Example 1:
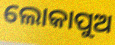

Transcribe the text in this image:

ଲୋକାପୁଅ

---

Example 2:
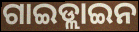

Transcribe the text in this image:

ଗାଇଡ୍ଲାଇନ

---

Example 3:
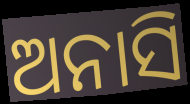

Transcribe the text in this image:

ଅନାସି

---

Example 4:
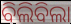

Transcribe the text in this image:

ବିଲିବିଲା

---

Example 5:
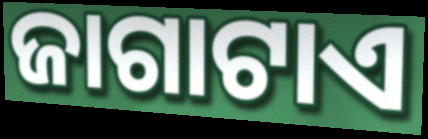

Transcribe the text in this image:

ଜାଗାଟାଏ